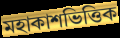
মহাকাশভিত্তিক